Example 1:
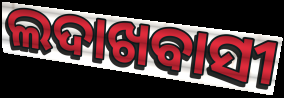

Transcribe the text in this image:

ଲଦାଖବାସୀ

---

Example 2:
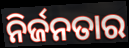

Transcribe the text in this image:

ନିର୍ଜନତାର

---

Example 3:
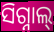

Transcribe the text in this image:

ସିଗ୍ନାଲ୍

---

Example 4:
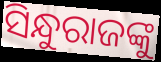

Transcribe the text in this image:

ସିନ୍ଧୁରାଜଙ୍କୁ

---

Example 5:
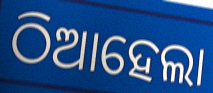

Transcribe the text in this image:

ଠିଆହେଲା